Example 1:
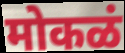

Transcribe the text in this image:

मोकळं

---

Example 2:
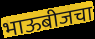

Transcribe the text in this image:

भाऊबीजचा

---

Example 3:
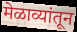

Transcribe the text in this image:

मेळाव्यांतून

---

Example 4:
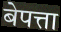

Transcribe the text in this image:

बेपत्ता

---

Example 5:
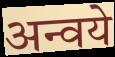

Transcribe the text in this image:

अन्वये